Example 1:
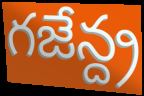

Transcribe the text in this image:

గజేన్ద్ర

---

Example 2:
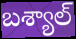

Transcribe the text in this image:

బశ్యాల్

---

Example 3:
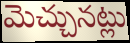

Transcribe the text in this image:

మెచ్చునట్లు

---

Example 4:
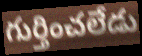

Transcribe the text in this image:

గుర్తించలేడు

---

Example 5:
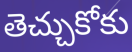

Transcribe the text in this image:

తెచ్చుకోకు